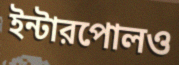
ইন্টারপোলও